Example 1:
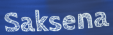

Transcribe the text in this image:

Saksena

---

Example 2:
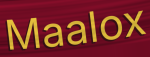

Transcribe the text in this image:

Maalox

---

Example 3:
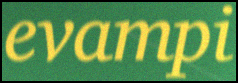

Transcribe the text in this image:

evampi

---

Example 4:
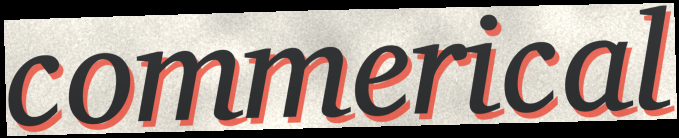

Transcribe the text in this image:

commerical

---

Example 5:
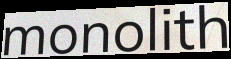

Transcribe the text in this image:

monolith